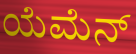
ಯೆಮೆನ್